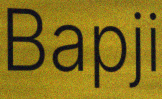
Bapji